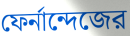
ফের্নান্দেজের